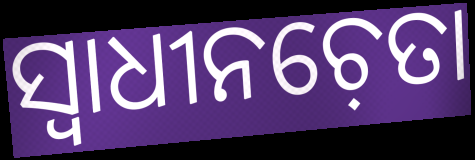
ସ୍ୱାଧୀନଚ଼େତା